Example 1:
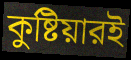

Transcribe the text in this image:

কুষ্টিয়ারই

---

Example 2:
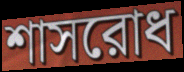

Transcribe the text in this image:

শাসরোধ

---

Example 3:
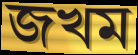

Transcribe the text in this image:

জখম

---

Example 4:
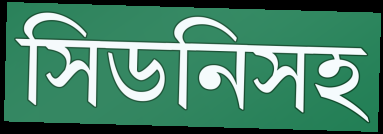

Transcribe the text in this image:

সিডনিসহ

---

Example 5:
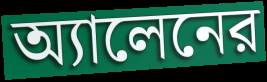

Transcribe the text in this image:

অ্যালেনের